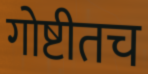
गोष्टीतच